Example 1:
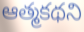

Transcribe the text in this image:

ఆత్మకథని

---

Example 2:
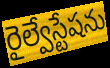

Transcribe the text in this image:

రైల్వేస్టేషను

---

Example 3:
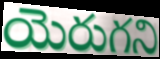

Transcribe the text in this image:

యెరుగని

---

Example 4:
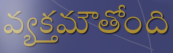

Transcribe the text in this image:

వ్యక్తమౌతోంది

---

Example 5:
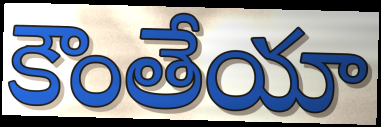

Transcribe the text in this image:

కౌంతేయా